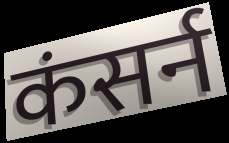
कंसर्न